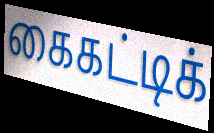
கைகட்டிக்